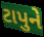
ટાપુને